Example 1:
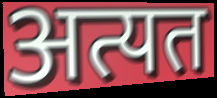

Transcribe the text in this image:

अत्यत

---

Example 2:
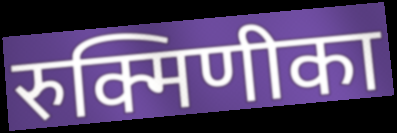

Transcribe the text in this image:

रुक्मिणीका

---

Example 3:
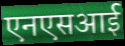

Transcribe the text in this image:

एनएसआई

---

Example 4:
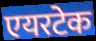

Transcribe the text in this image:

एयरटेक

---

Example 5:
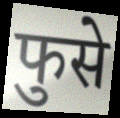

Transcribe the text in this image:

फुसे